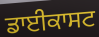
ਡਾਈਕਾਸਟ